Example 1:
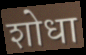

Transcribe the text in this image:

शोधा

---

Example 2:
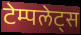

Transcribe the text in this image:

टेम्पलेट्स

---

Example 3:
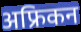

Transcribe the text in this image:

अफ्रिकन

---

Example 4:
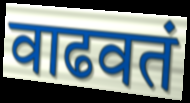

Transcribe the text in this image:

वाढवतं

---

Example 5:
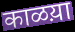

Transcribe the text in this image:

काळय़ा